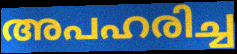
അപഹരിച്ച